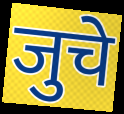
जुचे